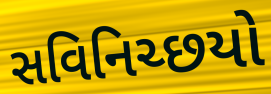
સવિનિચ્છયો